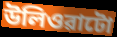
উলিওৱাটো